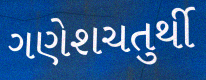
ગણેશચતુર્થી